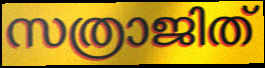
സത്രാജിത്